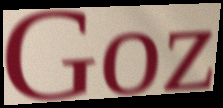
Goz